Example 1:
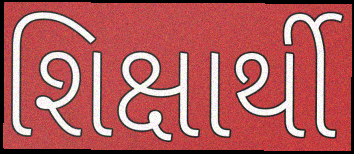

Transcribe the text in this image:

શિક્ષાર્થી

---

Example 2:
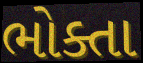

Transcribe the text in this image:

ભોક્તા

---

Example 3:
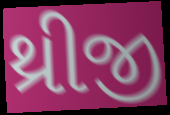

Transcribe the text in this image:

થ્રીજી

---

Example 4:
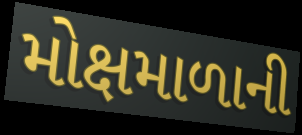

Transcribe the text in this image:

મોક્ષમાળાની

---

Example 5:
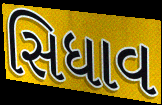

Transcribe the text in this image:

સિધાવ